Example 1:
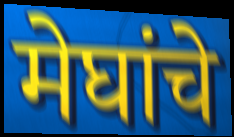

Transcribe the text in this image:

मेघांचे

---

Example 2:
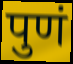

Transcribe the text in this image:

पुणं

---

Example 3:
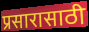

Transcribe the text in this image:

प्रसारासाठी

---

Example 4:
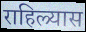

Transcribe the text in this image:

राहिल्यास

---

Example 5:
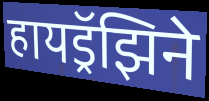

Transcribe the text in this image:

हायड्रॅझिने